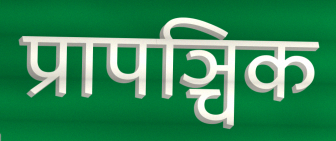
प्रापञ्चिक